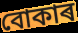
বোকাৰ